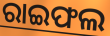
ରାଇଫଲ